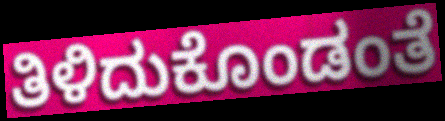
ತಿಳಿದುಕೊಂಡಂತೆ